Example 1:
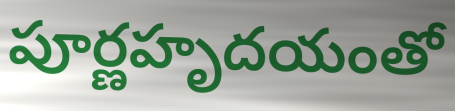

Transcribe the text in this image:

పూర్ణహృదయంతో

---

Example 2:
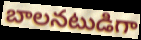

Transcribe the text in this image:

బాలనటుడిగా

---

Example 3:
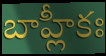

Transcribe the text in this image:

బాహ్లీకః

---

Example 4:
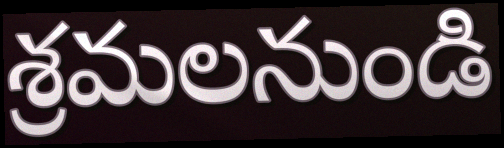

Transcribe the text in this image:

శ్రమలనుండి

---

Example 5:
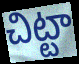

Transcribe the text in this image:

చిట్టా